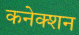
कनेक्‍शन